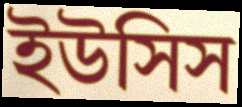
ইউসিস